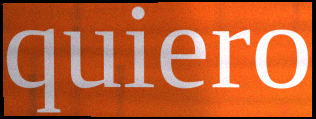
quiero